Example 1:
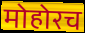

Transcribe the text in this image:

मोहोरच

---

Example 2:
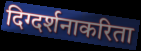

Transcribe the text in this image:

दिग्दर्शनाकरिता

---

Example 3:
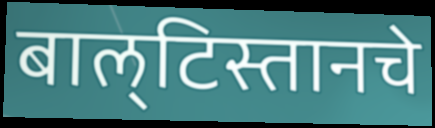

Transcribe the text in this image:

बाल्टिस्तानचे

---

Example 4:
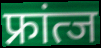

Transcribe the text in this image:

फ्रांत्ज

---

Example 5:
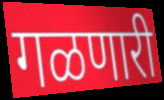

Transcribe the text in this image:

गळणारी